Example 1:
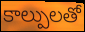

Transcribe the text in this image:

కాల్పులతో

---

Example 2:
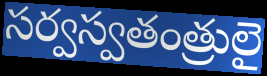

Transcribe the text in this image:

సర్వస్వతంత్రులై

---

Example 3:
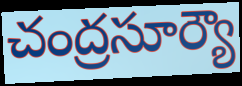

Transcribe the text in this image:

చంద్రసూర్యౌ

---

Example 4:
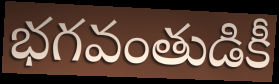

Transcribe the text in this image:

భగవంతుడికీ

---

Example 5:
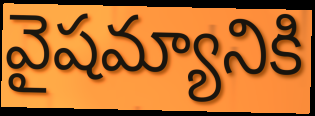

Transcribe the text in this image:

వైషమ్యానికి